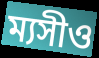
ম্যসীও